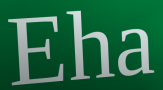
Eha